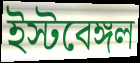
ইস্টবেঙ্গল